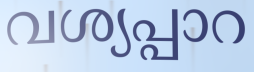
വശ്യപ്പാറ